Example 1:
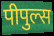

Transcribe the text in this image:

पीपुल्स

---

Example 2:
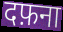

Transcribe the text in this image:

दफ़ना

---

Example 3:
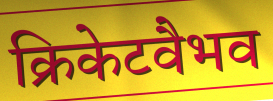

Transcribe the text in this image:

क्रिकेटवैभव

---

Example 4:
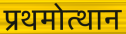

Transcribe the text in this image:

प्रथमोत्थान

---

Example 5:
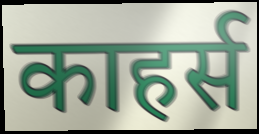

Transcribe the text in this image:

काहर्स